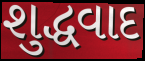
શુદ્ધવાદ